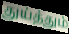
துய்த்தும்